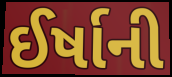
ઈર્ષાની